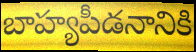
బాహ్యపీడనానికి